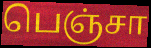
பெஞ்சா